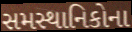
સમસ્થાનિકોના